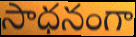
సాధనంగా